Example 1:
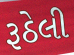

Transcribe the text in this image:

રૂઠેલી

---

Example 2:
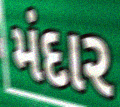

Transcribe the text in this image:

મંદાર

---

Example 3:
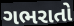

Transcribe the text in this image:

ગભરાતો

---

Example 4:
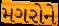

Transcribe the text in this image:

મગરોને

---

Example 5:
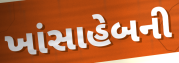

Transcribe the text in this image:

ખાંસાહેબની